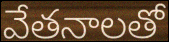
వేతనాలతో